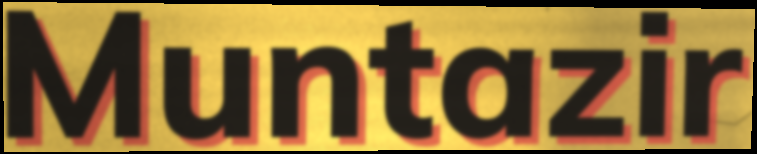
Muntazir